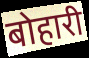
बोहारी